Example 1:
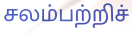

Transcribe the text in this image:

சலம்பற்றிச்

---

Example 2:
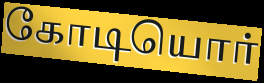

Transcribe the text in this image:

கோடியொர்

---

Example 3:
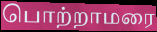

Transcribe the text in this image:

பொற்றாமரை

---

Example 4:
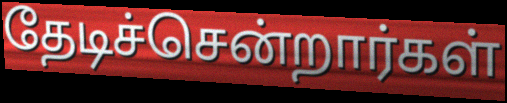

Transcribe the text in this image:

தேடிச்சென்றார்கள்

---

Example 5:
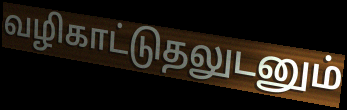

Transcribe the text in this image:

வழிகாட்டுதலுடனும்